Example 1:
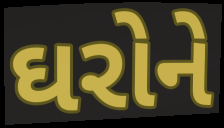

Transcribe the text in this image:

ઘરોને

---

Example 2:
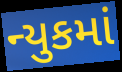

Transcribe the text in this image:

ન્યુકમાં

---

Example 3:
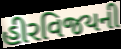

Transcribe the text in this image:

હીરવિજયની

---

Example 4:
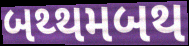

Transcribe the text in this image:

બથ્થમબથ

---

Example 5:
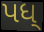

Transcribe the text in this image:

પધ્